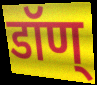
डॉण्